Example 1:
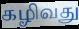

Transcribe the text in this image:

கழிவது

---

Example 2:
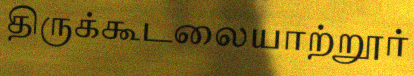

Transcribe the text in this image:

திருக்கூடலையாற்றூர்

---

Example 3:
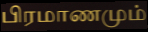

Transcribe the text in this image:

பிரமாணமும்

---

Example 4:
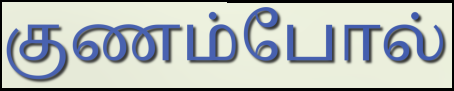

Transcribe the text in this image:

குணம்போல்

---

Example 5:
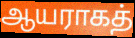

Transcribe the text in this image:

ஆயராகத்